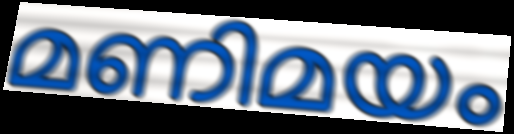
മണിമയം